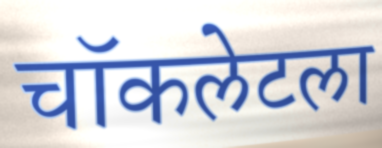
चॉकलेटला